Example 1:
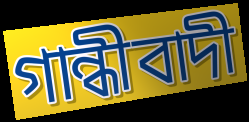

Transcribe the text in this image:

গান্ধীবাদী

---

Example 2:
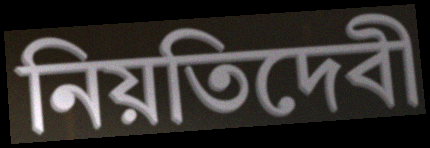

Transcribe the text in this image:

নিয়তিদেবী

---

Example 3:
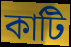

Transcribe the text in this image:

কাটি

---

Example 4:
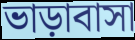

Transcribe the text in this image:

ভাড়াবাসা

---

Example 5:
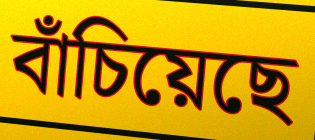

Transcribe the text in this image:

বাঁচিয়েছে